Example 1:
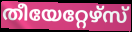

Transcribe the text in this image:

തീയേറ്റേഴ്സ്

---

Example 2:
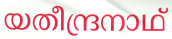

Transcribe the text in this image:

യതീന്ദ്രനാഥ്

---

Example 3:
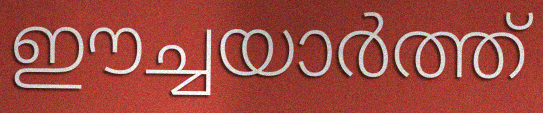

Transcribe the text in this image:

ഈച്ചയാർത്ത്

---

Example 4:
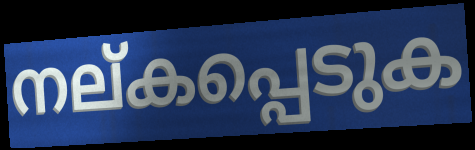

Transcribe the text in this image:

നല്കപ്പെടുക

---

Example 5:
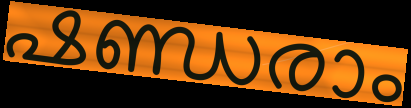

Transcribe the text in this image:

ഷണ്ഡരാം